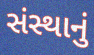
સંસ્થાનું